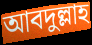
আবদুল্লাহ